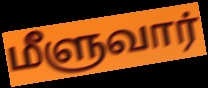
மீளுவார்